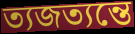
ত্যজত্যন্তে